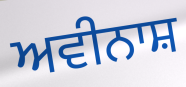
ਅਵੀਨਾਸ਼